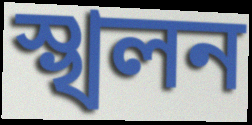
স্খলন